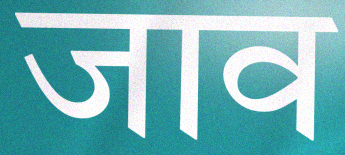
जाव